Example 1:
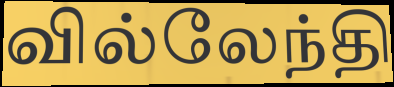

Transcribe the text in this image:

வில்லேந்தி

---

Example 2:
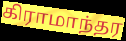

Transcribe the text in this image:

கிராமாந்தர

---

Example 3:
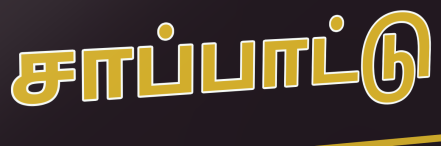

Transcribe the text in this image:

சாப்பாட்டு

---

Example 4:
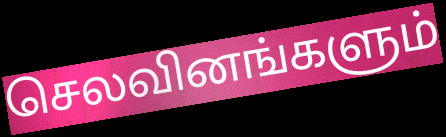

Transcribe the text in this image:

செலவினங்களும்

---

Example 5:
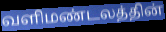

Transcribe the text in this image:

வளிமண்டலத்தின்